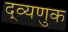
द्व्यणुक